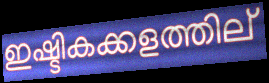
ഇഷ്ടികക്കളത്തില്